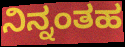
ನಿನ್ನಂತಹ